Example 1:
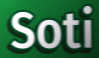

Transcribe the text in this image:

Soti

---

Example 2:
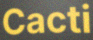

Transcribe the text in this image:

Cacti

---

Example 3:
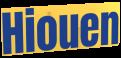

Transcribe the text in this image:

Hiouen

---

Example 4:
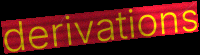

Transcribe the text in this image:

derivations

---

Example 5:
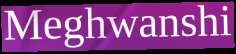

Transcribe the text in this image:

Meghwanshi